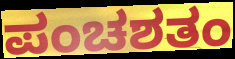
ಪಂಚಶತಂ